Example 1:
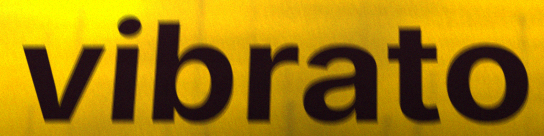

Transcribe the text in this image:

vibrato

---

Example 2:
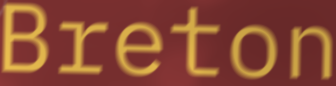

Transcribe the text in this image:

Breton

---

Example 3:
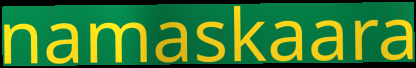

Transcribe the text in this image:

namaskaara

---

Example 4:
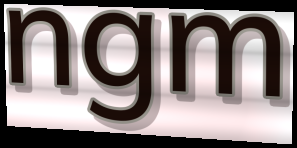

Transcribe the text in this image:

ngm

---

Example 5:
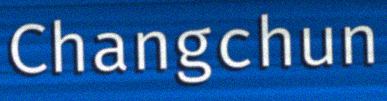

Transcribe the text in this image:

Changchun